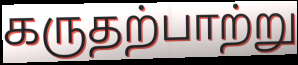
கருதற்பாற்று